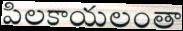
పిలకాయలంతా